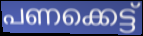
പണക്കെട്ട്